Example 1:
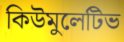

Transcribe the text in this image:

কিউমুলেটিভ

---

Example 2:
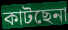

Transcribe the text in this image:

কাটছেনা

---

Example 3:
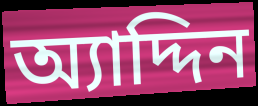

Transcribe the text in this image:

অ্যাদ্দিন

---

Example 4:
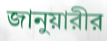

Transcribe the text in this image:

জানুয়ারীর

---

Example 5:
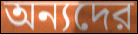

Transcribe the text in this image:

অন্যদের